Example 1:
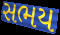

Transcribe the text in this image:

સભય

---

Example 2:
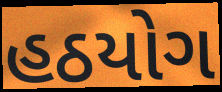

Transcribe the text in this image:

હઠયોગ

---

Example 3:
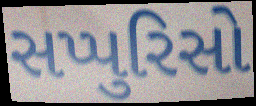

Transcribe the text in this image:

સપ્પુરિસો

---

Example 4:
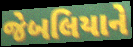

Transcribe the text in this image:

જેબલિયાને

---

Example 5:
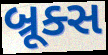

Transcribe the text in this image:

બ્રૂક્સ